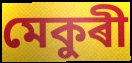
মেকুৰী